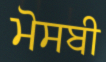
ਮੋਸਬੀ